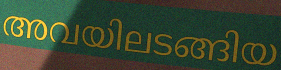
അവയിലടങ്ങിയ